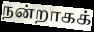
நன்றாகக்